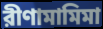
রীণামামিমা